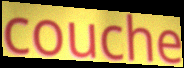
couche